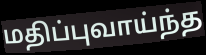
மதிப்புவாய்ந்த